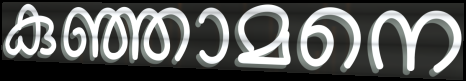
കുഞ്ഞാമനെ